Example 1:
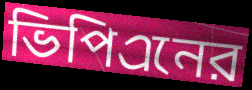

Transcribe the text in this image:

ভিপিএনের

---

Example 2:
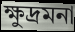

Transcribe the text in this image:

ক্ষুদ্রমনা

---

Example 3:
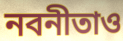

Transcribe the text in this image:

নবনীতাও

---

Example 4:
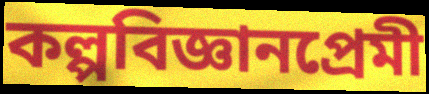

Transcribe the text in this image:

কল্পবিজ্ঞানপ্রেমী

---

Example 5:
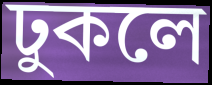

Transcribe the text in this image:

ঢুকলে